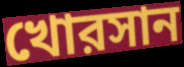
খোরসান